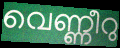
വെണ്ണീറു